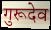
गुरूदेव